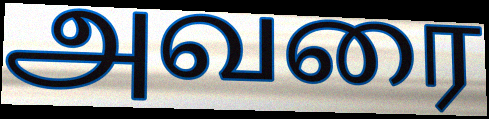
அவரை